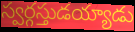
స్వర్గస్తుడయ్యాడు